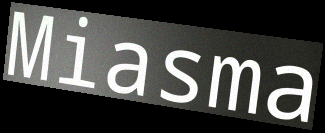
Miasma